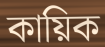
কায়িক